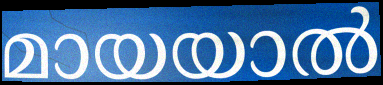
മായയാൽ